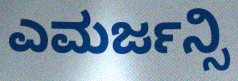
ಎಮರ್ಜನ್ಸಿ